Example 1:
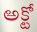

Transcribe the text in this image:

అక్టో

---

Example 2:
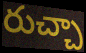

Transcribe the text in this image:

రుచ్చా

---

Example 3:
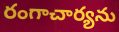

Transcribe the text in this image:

రంగాచార్యను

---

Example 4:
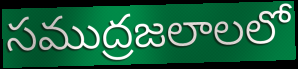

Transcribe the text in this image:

సముద్రజలాలలో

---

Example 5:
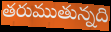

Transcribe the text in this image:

తరుముతున్నది